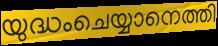
യുദ്ധംചെയ്യാനെത്തി